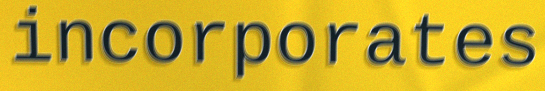
incorporates